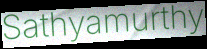
Sathyamurthy